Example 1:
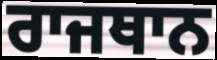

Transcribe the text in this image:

ਰਾਜਥਾਨ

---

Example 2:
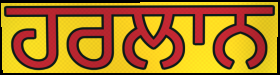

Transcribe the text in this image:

ਹਰਲਾਨ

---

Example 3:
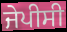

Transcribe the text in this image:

ਜੇਪੀਸੀ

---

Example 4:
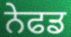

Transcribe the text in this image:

ਨੇਫਡ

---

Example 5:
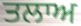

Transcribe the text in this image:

ਤਲਾਅ